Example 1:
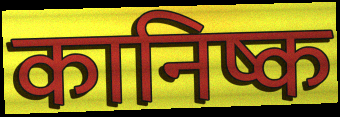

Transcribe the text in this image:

कानिष्क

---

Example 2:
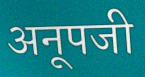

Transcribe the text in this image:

अनूपजी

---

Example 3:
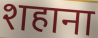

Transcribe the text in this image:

शहाना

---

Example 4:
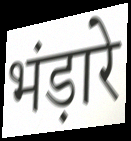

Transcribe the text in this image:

भंड़ारे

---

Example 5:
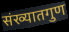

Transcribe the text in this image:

संख्यातगुण